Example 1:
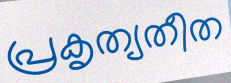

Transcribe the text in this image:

പ്രകൃത്യതീത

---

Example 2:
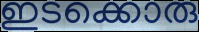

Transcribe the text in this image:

ഇടക്കൊരു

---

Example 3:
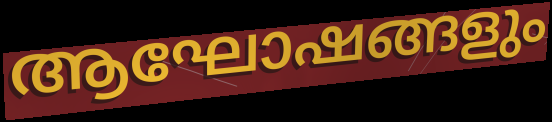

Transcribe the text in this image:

ആഘോഷങ്ങളും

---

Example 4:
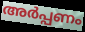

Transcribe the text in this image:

അർപ്പണം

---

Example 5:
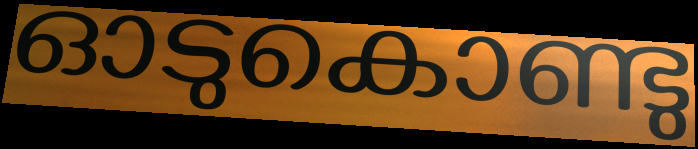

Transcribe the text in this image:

ഓടുകൊണ്ടു